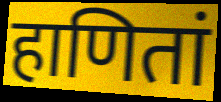
हाणितां